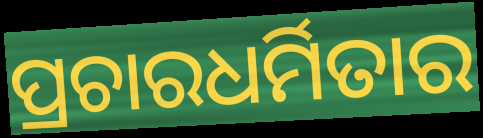
ପ୍ରଚାରଧର୍ମିତାର